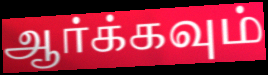
ஆர்க்கவும்